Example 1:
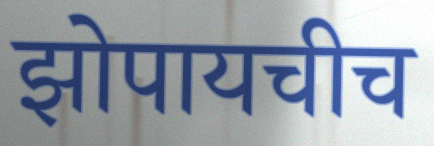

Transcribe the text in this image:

झोपायचीच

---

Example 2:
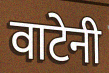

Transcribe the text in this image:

वाटेनी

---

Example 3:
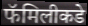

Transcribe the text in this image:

फॅमिलीकडे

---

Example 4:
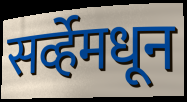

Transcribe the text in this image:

सर्व्हेमधून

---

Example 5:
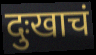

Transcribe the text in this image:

दुःखाचं